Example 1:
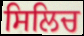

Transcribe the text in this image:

ਸਿਲਿਚ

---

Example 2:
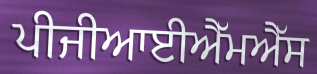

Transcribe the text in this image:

ਪੀਜੀਆਈਐੱਮਐੱਸ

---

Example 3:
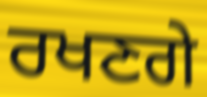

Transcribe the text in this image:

ਰਖਣਗੇ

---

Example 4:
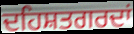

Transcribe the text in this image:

ਦਹਿਸ਼ਤਗਰਦਾਂ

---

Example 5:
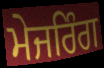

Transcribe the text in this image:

ਮੇਜਰਿੰਗ